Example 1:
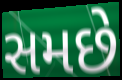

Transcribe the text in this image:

સમછે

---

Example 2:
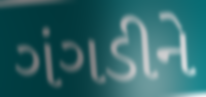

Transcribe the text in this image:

ગંગડીને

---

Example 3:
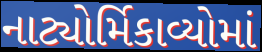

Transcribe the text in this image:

નાટ્યોર્મિકાવ્યોમાં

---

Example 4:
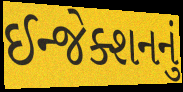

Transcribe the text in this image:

ઈન્જેક્શનનું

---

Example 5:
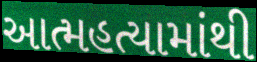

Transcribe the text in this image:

આત્મહત્યામાંથી